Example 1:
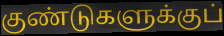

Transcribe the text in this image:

குண்டுகளுக்குப்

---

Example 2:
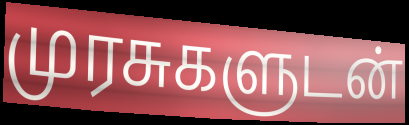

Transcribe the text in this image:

முரசுகளுடன்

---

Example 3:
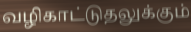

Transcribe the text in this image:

வழிகாட்டுதலுக்கும்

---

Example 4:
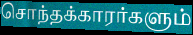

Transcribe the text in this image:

சொந்தக்காரர்களும்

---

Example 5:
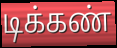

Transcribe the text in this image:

டிக்கண்